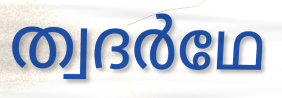
ത്വദർഥേ